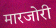
मारजोरी